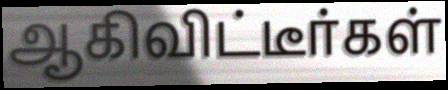
ஆகிவிட்டீர்கள்